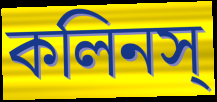
কলিনস্